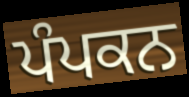
ਪੰਪਕਨ